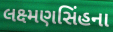
લક્ષ્મણસિંહના